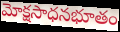
మోక్షసాధనభూతం